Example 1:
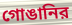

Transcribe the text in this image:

গোঙানির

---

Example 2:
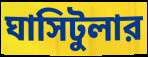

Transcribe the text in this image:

ঘাসিটুলার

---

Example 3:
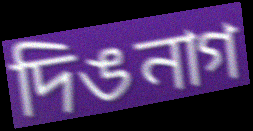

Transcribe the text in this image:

দিঙনাগ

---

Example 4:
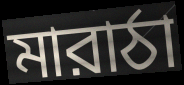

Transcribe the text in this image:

মারাঠা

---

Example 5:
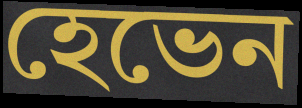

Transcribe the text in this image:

হেভেন